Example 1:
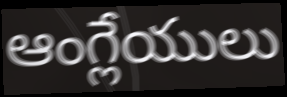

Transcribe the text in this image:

ఆంగ్లేయులు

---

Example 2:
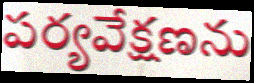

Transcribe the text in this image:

పర్యవేక్షణను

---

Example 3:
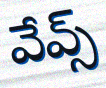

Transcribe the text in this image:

వేవ్స్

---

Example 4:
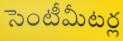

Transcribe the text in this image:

సెంటీమీటర్ల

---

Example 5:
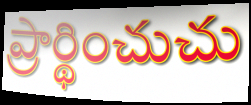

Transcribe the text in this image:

ప్రార్థించుచు